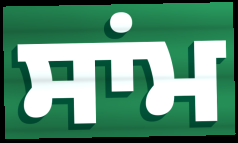
ਸਾਂਮ